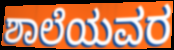
ಶಾಲೆಯವರ